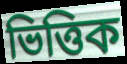
ভিত্তিক